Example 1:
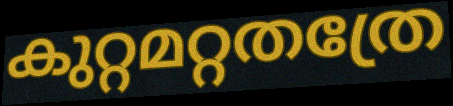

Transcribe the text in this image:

കുറ്റമറ്റതത്രേ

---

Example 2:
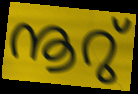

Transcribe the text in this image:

നൂറു്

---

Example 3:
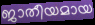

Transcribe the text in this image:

ജാതീയമായ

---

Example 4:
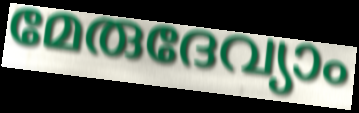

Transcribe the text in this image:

മേരുദേവ്യാം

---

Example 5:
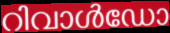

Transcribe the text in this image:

റിവാൾഡോ